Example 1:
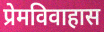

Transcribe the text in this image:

प्रेमविवाहास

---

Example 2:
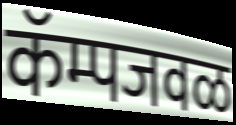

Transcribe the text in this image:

कॅम्पजवळ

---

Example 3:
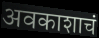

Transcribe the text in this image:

अवकाशाचं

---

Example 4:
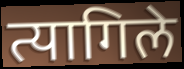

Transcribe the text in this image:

त्यागिले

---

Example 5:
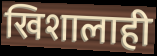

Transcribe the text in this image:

खिशालाही